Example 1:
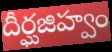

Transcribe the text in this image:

దీర్ఘజిహ్వం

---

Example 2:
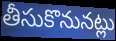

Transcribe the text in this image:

తీసుకొనునట్లు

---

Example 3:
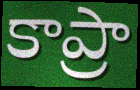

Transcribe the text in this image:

కాప్రా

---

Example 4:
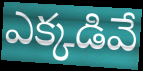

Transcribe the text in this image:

ఎక్కడివే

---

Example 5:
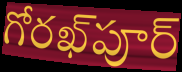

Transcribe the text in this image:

గోరఖ్‌పూర్